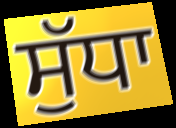
ਸੁੱਧਾ